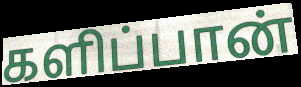
களிப்பான்